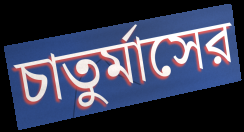
চাতুর্মাসের